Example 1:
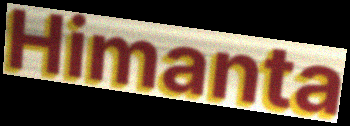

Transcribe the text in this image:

Himanta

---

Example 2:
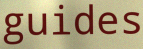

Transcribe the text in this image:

guides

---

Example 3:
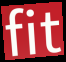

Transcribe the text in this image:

fit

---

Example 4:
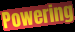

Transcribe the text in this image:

Powering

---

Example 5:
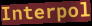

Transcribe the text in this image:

Interpol